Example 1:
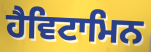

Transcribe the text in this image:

ਹੈਵਿਟਾਮਿਨ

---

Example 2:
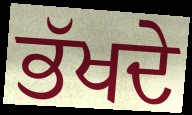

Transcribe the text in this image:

ਭੱਖਦੇ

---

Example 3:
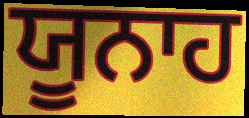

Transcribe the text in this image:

ਯੂਨਾਹ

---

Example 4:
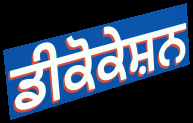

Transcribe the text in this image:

ਡੀਕੋਕੇਸ਼ਨ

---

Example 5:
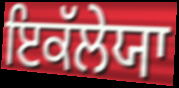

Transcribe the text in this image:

ਇਕੱਲੇਯਾ